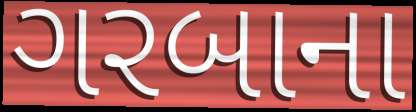
ગરબાના